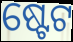
ଷ୍ଟେଟ